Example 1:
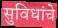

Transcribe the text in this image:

सुविधांचे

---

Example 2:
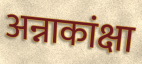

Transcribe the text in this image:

अन्नाकांक्षा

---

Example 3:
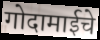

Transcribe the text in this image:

गोदामाईचे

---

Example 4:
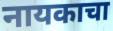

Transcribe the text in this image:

नायकाचा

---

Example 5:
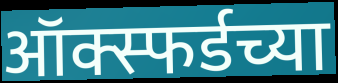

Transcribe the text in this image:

ऑक्स्फर्डच्या